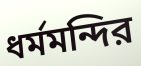
ধর্মমন্দির